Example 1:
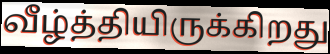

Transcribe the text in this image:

வீழ்த்தியிருக்கிறது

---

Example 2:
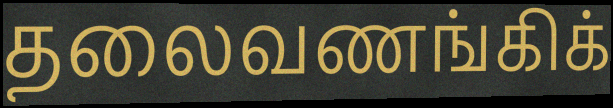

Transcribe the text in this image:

தலைவணங்கிக்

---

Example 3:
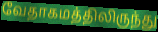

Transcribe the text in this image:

வேதாகமத்திலிருந்து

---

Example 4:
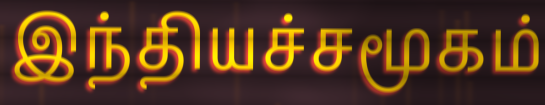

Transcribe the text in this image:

இந்தியச்சமூகம்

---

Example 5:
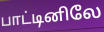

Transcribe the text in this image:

பாட்டினிலே